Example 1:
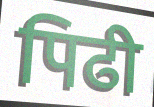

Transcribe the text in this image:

पिढी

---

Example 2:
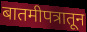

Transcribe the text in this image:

बातमीपत्रातून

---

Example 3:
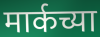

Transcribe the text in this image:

मार्कच्या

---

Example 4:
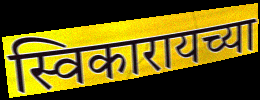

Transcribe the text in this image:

स्विकारायच्या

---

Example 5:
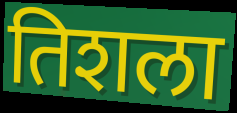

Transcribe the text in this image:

तिशला